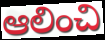
ఆలించి